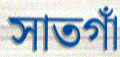
সাতগাঁ